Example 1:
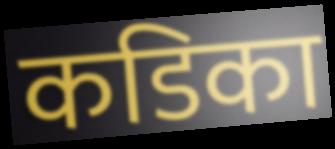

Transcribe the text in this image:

कडिका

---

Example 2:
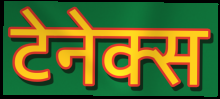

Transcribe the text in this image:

टेनेक्स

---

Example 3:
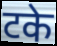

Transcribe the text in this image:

टके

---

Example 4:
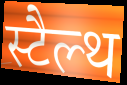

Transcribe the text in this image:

स्टैल्थ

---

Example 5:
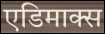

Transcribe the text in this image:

एडिमाक्स